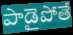
పాడైపోతే